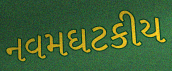
નવમઘટકીય